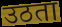
उठता